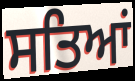
ਸਤਿਆਂ